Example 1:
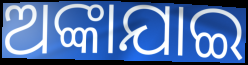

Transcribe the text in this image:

ଅଙ୍କାଯାଇ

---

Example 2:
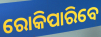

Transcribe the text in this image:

ରୋକିପାରିବେ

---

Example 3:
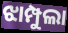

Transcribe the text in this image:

ଝାମ୍ପୁଲା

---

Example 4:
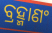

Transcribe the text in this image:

ବ୍ରହ୍ମାଣଂ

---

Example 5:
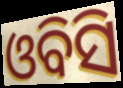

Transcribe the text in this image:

ଓବିସି